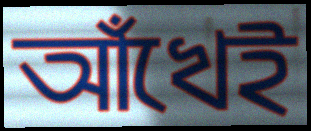
আঁখেই